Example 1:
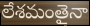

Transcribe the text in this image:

లేశమంతైనా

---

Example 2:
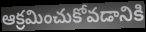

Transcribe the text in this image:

ఆక్రమించుకోవడానికి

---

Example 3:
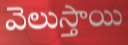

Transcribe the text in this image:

వెలుస్తాయి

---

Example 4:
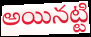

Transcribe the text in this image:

అయినట్టి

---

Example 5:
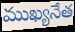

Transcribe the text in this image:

ముఖ్యనేత